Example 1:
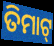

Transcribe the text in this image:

ତିମାଟ୍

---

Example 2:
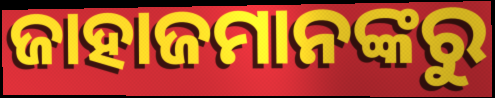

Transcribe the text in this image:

ଜାହାଜମାନଙ୍କରୁ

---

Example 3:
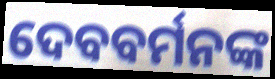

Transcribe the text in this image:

ଦେବବର୍ମନଙ୍କ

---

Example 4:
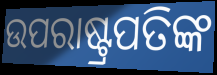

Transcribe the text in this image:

ଉପରାଷ୍ଟ୍ରପତିଙ୍କ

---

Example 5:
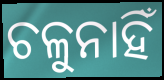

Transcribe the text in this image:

ଚଳୁନାହିଁ